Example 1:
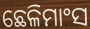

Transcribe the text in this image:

ଛେଳିମାଂସ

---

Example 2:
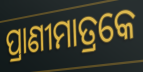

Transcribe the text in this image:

ପ୍ରାଣୀମାତ୍ରକେ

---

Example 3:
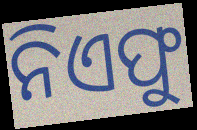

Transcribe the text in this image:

ନିଏଫୁ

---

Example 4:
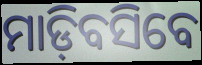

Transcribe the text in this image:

ମାଡ଼ିବସିବେ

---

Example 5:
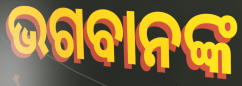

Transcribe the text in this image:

ଭଗବାନଙ୍କ